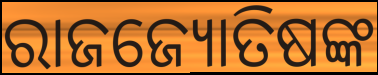
ରାଜଜ୍ୟୋତିଷଙ୍କ